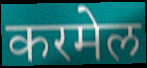
करमेल